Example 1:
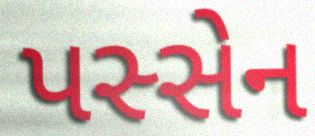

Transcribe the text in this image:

પસ્સેન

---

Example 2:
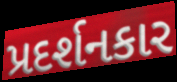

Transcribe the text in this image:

પ્રદર્શનકાર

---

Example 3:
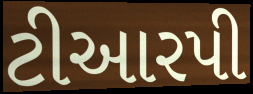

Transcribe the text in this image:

ટીઆરપી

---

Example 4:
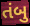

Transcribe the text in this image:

તંબુ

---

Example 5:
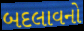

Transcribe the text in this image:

બદલાવનો